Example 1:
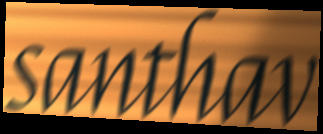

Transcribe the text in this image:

santhav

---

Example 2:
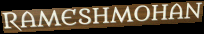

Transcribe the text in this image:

RAMESHMOHAN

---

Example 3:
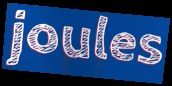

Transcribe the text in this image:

joules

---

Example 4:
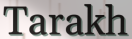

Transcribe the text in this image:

Tarakh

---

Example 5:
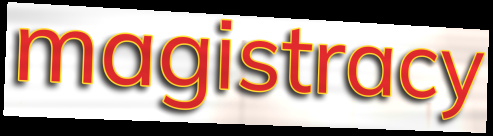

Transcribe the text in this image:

magistracy